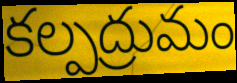
కల్పద్రుమం